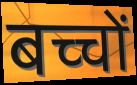
बच्‍चों